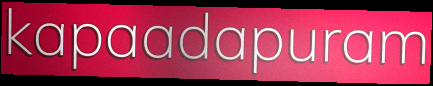
kapaadapuram